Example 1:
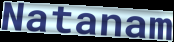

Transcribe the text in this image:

Natanam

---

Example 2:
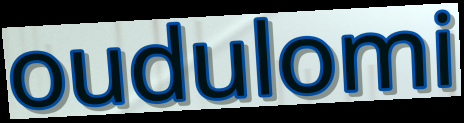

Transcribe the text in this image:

oudulomi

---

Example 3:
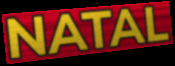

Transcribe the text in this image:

NATAL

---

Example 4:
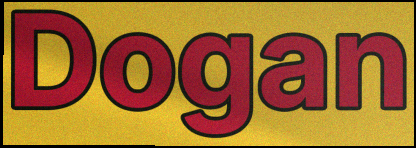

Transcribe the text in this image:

Dogan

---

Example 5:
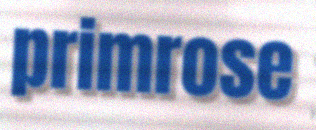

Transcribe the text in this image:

primrose